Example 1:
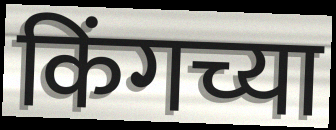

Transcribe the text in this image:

किंगच्या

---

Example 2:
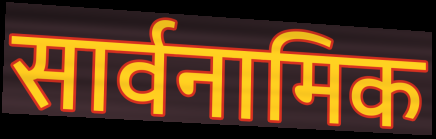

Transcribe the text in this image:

सार्वनामिक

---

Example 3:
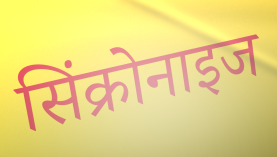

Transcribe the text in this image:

सिंक्रोनाइज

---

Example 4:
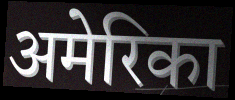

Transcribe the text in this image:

अमेरिका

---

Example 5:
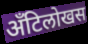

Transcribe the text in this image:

अँटिलोखस